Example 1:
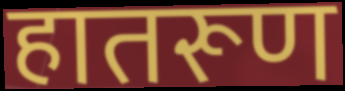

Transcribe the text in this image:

हातरूण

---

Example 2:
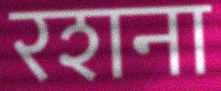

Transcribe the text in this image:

रशना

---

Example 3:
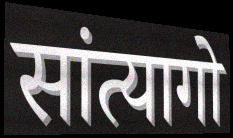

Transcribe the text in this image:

सांत्यागो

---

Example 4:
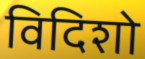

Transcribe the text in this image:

विदिशो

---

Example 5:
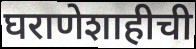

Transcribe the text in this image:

घराणेशाहीची